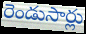
రెండుసార్లు